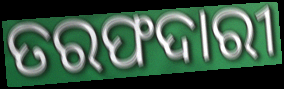
ତରଫଦାରୀ